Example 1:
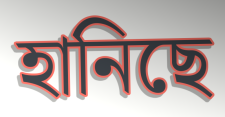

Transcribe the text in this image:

হানিছে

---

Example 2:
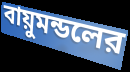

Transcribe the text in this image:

বায়ুমন্ডলের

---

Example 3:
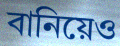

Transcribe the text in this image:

বানিয়েও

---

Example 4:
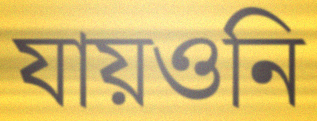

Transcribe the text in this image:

যায়ওনি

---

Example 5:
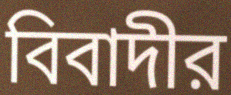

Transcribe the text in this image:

বিবাদীর